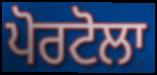
ਪੋਰਟੋਲਾ